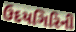
ઉદયગિરિની